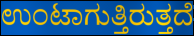
ಉಂಟಾಗುತ್ತಿರುತ್ತದೆ